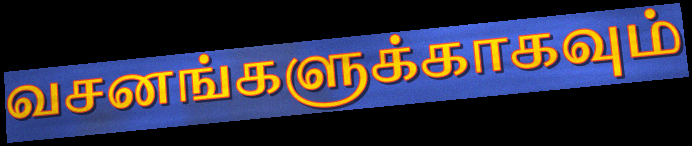
வசனங்களுக்காகவும்